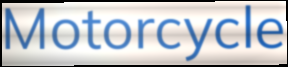
Motorcycle